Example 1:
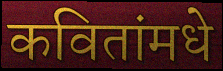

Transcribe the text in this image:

कवितांमधे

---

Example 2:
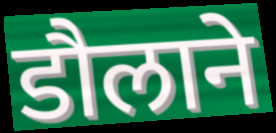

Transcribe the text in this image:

डौलाने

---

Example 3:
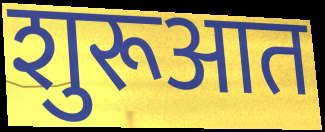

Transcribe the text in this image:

शुरूआत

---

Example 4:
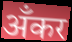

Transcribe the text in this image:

अँकर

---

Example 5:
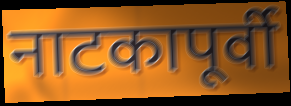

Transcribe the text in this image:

नाटकापूर्वी